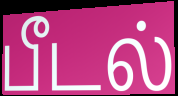
பீடல்